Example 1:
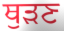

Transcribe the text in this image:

ਥੁੜਣ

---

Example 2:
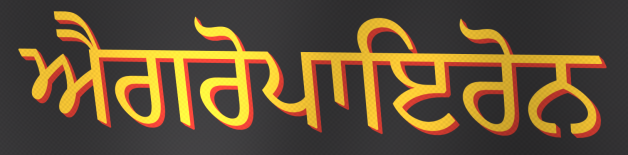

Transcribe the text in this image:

ਐਗਰੋਪਾਇਰੋਨ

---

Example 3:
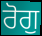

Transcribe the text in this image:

ਰੋਗੁ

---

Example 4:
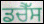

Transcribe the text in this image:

ਡਚੈੱਸ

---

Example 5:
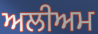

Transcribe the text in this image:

ਅਲੀਅਮ